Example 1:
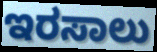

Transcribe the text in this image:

ಇರಸಾಲು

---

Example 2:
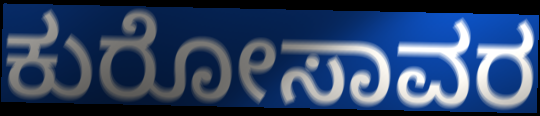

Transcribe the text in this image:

ಕುರೋಸಾವರ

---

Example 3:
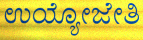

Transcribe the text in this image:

ಉಯ್ಯೋಜೇತಿ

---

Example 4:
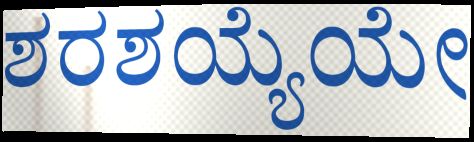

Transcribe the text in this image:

ಶರಶಯ್ಯೆಯೇ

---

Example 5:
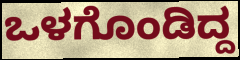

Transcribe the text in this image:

ಒಳಗೊಂಡಿದ್ದ